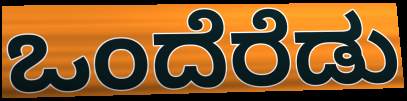
ಒಂದೆರೆಡು